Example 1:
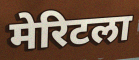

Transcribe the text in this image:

मेरिटला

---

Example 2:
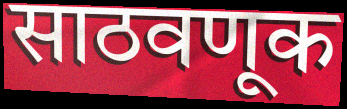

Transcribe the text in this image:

साठवणूक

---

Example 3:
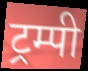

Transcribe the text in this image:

ट्रम्पी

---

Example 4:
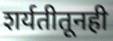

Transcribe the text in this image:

शर्यतीतूनही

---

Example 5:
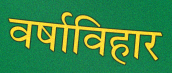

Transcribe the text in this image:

वर्षाविहार